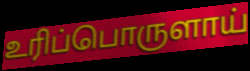
உரிப்பொருளாய்